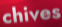
chives